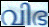
വിഭ